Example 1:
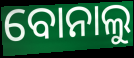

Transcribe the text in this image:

ବୋନାଲୁ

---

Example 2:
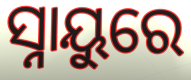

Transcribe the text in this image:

ସ୍ନାୟୁରେ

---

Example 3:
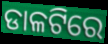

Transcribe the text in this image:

ଡାଳଟିରେ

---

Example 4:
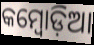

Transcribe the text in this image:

କମ୍ୱୋଡ଼ିଆ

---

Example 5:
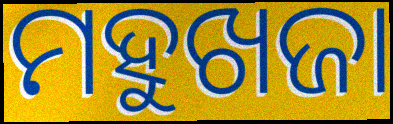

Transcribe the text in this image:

ମହୁଖଜା